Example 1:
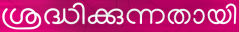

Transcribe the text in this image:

ശ്രദ്ധിക്കുന്നതായി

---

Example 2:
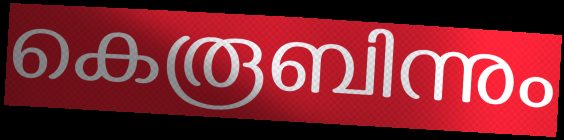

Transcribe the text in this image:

കെരൂബിന്നും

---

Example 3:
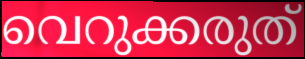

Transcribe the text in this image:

വെറുക്കരുത്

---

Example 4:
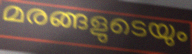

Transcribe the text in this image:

മരങ്ങളുടെയും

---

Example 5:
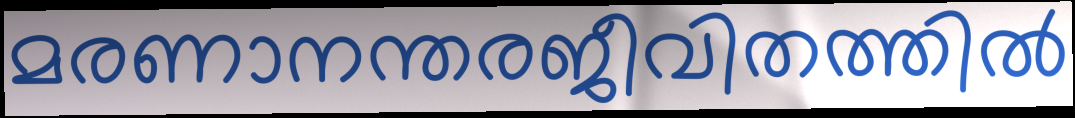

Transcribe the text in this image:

മരണാനന്തരജീവിതത്തിൽ